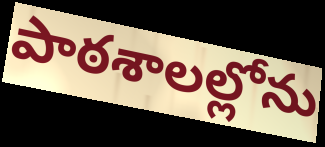
పాఠశాలల్లోను